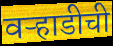
वऱ्हाडीची